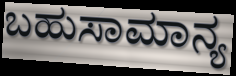
ಬಹುಸಾಮಾನ್ಯ